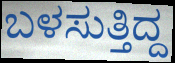
ಬಳಸುತ್ತಿದ್ದ